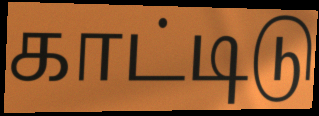
காட்டிடு